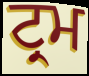
ਟ੍ਰਮ